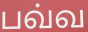
பவ்வ